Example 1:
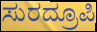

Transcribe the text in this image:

ಸುರದ್ರೂಪಿ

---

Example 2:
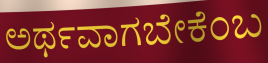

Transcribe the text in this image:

ಅರ್ಥವಾಗಬೇಕೆಂಬ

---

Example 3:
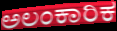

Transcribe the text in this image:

ಅಲಂಕಾರಿಕ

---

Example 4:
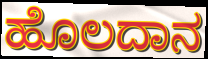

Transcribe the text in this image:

ಹೊಲದಾನ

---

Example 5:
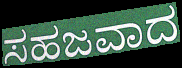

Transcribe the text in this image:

ಸಹಜವಾದ